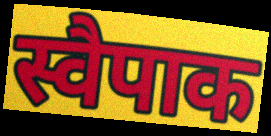
स्वैपाक